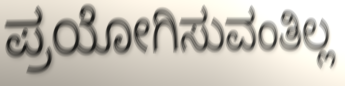
ಪ್ರಯೋಗಿಸುವಂತಿಲ್ಲ